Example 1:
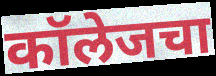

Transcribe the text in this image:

कॉलेजचा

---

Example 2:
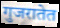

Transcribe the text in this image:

गुजरातेत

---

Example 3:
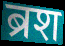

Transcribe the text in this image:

ब्रश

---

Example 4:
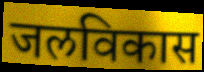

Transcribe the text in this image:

जलविकास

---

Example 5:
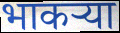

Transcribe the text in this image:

भाकऱ्या